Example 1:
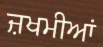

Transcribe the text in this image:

ਜ਼ਖਮੀਆਂ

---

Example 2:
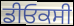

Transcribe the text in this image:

ਡੀਓਕਸੀ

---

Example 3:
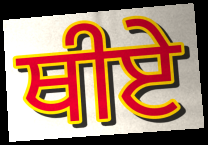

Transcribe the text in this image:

ਥੀਏ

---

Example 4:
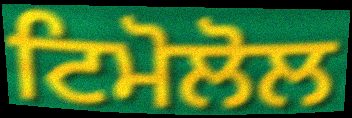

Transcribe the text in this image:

ਟਿਮੋਲੋਲ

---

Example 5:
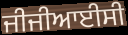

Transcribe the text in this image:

ਜੀਜੀਆਈਸੀ